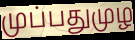
முப்பதுமுழ